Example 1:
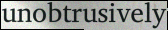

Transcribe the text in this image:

unobtrusively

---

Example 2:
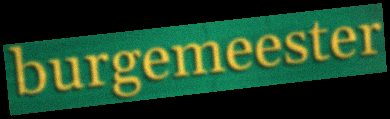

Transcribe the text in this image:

burgemeester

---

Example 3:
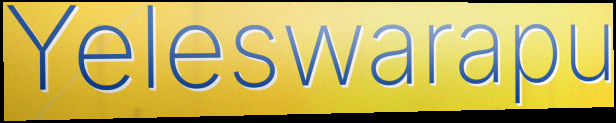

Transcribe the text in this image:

Yeleswarapu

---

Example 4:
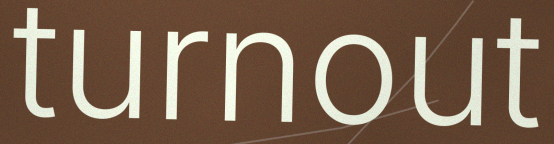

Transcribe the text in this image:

turnout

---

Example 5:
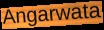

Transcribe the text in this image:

Angarwata